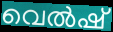
വെൽഷ്